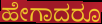
ಹೇಗಾದರೂ